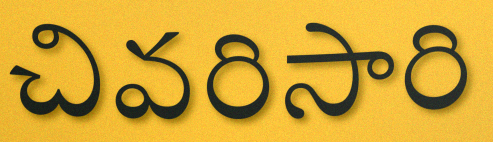
చివరిసారి